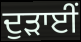
ਦੁੜਾਈਂ